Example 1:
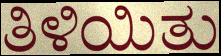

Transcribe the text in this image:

ತಿಳಿಯಿತು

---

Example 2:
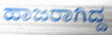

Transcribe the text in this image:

ಹಾಜರಾಗಿದ್ದ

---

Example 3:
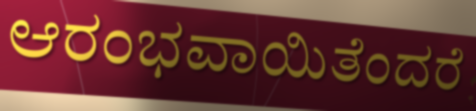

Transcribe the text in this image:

ಆರಂಭವಾಯಿತೆಂದರೆ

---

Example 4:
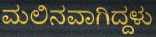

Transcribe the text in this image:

ಮಲಿನವಾಗಿದ್ದಳು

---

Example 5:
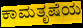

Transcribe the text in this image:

ಕಾಮತೃಷೆಯ